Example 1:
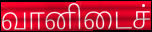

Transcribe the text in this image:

வானிடைச்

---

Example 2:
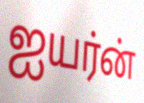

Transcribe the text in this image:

ஐயர்ன்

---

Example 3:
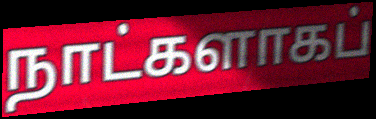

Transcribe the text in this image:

நாட்களாகப்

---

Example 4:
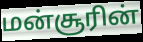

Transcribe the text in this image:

மன்சூரின்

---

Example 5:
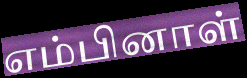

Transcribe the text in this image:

எம்பினாள்